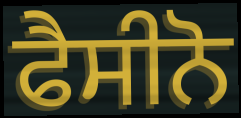
ਫੈਸੀਨੋ